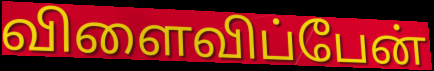
விளைவிப்பேன்